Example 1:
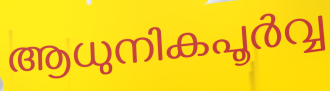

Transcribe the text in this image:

ആധുനികപൂർവ്വ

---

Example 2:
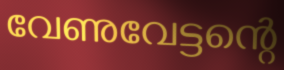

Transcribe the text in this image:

വേണുവേട്ടന്റെ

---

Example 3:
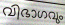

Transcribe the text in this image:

വിഭാഗവും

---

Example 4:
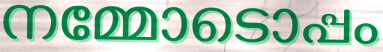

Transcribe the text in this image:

നമ്മോടൊപ്പം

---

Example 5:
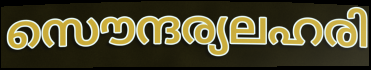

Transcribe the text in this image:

സൌന്ദര്യലഹരി